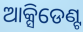
ଆକ୍ସିଡେଣ୍ଟ